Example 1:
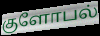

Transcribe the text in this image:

குளோபல்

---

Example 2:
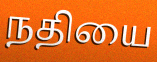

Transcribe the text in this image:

நதியை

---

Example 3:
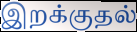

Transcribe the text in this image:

இறக்குதல்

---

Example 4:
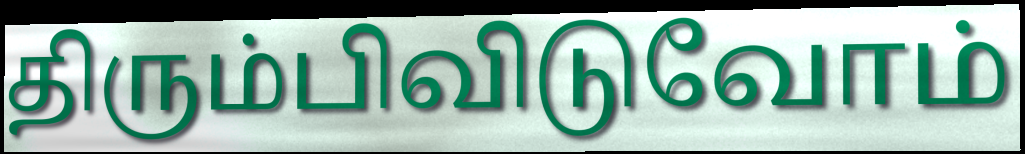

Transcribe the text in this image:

திரும்பிவிடுவோம்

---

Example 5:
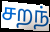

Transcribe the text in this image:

சறந்